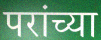
परांच्या